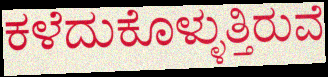
ಕಳೆದುಕೊಳ್ಳುತ್ತಿರುವೆ